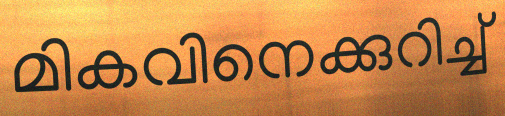
മികവിനെക്കുറിച്ച്